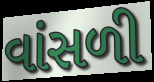
વાંસળી